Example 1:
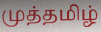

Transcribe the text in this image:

முத்தமிழ்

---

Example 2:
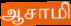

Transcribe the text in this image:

ஆசாமி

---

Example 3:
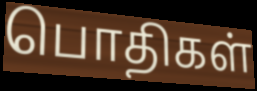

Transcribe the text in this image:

பொதிகள்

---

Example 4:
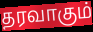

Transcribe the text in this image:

தரவாகும்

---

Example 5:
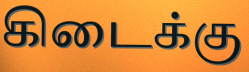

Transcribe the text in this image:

கிடைக்கு